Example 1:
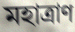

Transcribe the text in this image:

মহাত্রাণ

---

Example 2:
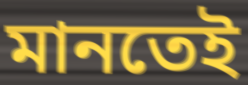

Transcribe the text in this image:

মানতেই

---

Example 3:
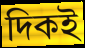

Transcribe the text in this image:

দিকই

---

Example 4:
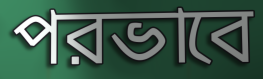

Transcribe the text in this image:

পরভাবে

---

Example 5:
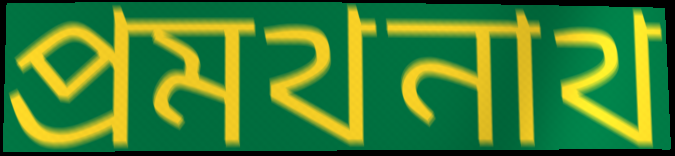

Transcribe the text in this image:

প্রমথনাথ